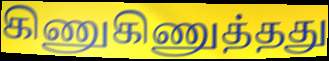
கிணுகிணுத்தது